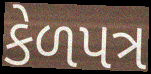
કેળપત્ર